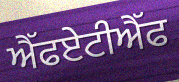
ਐੱਫਏਟੀਐੱਫ